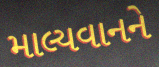
માલ્યવાનને